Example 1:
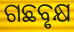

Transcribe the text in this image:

ଗଛବୃକ୍ଷ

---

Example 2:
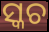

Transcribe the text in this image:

ସ୍କଚ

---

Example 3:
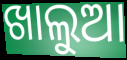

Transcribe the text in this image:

ଖାଲୁଆ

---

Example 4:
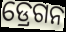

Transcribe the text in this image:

ଡ୍ରେଗନ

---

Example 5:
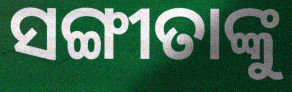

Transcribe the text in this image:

ସଙ୍ଗୀତାଙ୍କୁ